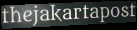
thejakartapost